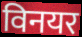
विनयर